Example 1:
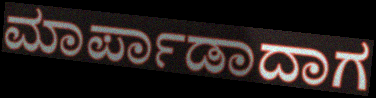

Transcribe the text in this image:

ಮಾರ್ಪಾಡಾದಾಗ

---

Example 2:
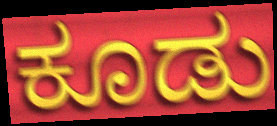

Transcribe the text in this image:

ಕೂಡು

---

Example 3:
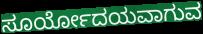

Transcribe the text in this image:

ಸೂರ್ಯೋದಯವಾಗುವ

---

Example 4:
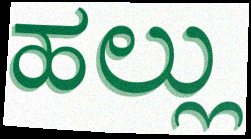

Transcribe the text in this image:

ಹಲ್ಲು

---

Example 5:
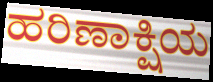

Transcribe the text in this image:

ಹರಿಣಾಕ್ಷಿಯ